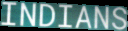
INDIANS